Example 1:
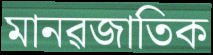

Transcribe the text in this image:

মানৱজাতিক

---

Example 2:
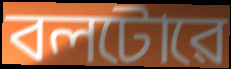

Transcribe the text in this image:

বলটোৱে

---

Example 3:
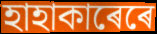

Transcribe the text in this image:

হাহাকাৰেৰে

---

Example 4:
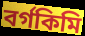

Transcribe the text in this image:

বৰ্গকিমি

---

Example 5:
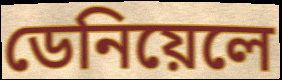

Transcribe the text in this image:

ডেনিয়েলে